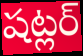
షట్లర్